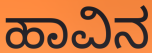
ಹಾವಿನ